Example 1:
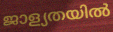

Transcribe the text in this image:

ജാള്യതയിൽ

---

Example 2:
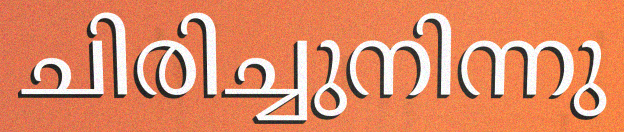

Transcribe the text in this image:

ചിരിച്ചുനിന്നു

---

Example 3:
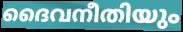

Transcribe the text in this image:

ദൈവനീതിയും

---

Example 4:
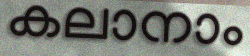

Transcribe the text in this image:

കലാനാം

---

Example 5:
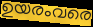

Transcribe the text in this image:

ഉയരംവരെ